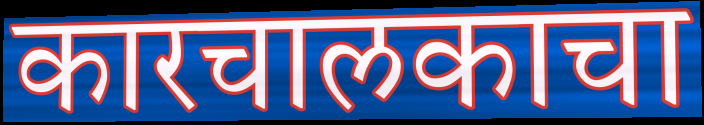
कारचालकाचा